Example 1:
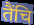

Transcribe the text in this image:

तैंचि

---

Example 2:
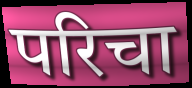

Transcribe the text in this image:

परिचा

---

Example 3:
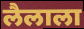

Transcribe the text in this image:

लैलाला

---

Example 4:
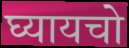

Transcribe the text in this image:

घ्यायचो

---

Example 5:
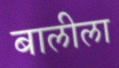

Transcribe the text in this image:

बालीला